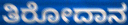
ತಿರೋದಾನ